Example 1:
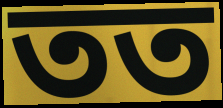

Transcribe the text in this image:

তত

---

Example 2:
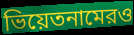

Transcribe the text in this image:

ভিয়েতনামেরও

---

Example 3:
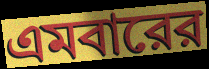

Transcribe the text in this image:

এমবারের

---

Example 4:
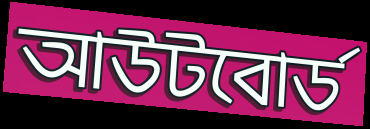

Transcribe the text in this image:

আউটবোর্ড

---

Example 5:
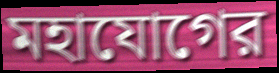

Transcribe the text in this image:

মহাযোগের